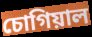
চোগিয়াল